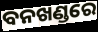
ବନଖଣ୍ଡରେ